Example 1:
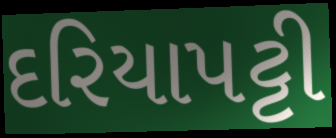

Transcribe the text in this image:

દરિયાપટ્ટી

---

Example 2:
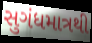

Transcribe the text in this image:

સુગંધમાત્રથી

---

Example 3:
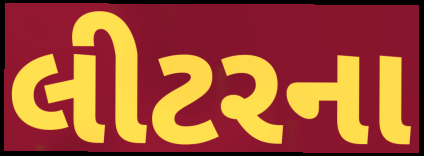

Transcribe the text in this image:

લીટરના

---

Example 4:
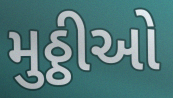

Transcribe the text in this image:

મુઠ્ઠીઓ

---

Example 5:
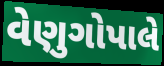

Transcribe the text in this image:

વેણુગોપાલે